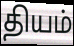
தியம்